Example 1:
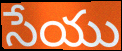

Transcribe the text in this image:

సేయు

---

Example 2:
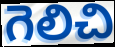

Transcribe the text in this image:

గెలిచి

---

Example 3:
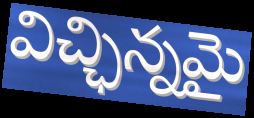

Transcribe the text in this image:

విచ్ఛిన్నమై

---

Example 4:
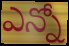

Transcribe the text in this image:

ఎన్నో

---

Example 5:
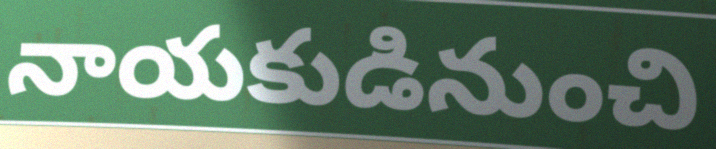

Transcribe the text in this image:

నాయకుడినుంచి